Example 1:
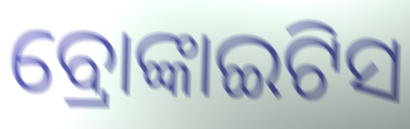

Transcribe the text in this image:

ବ୍ରୋଙ୍କାଇଟିସ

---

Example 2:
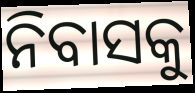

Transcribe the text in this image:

ନିବାସକୁ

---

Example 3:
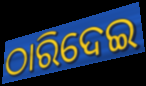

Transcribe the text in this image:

ଠାରିଦେଇ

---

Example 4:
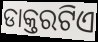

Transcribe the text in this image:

ଡାକ୍ତରଟିଏ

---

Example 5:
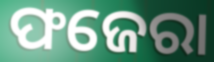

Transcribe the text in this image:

ଫଜେରା